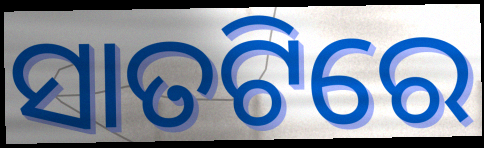
ସାତଟିରେ